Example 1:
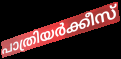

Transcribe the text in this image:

പാത്രിയർക്കീസ്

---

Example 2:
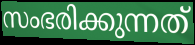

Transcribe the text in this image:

സംഭരിക്കുന്നത്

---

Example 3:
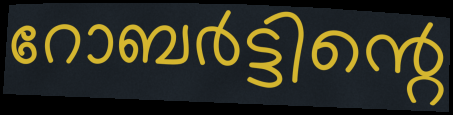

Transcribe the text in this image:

റോബർട്ടിന്റെ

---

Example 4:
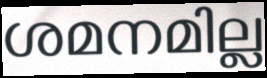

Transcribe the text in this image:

ശമനമില്ല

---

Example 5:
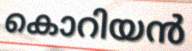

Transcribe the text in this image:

കൊറിയൻ